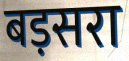
बड़सरा